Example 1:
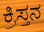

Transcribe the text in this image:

ಕ್ರಿಸ್ತನ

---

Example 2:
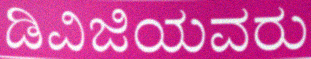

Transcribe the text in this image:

ಡಿವಿಜಿಯವರು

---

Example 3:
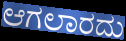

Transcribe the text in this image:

ಆಗಲಾರದು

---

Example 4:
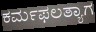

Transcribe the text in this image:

ಕರ್ಮಫಲತ್ಯಾಗ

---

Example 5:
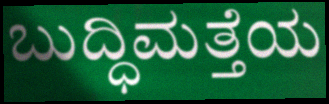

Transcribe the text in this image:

ಬುದ್ಧಿಮತ್ತೆಯ